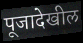
पूजादेखील